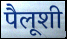
पैलूशी